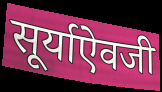
सूर्याऐवजी